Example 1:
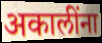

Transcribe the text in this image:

अकालींना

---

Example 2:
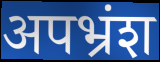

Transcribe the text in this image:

अपभ्रंश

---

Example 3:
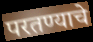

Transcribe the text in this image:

परतण्याचे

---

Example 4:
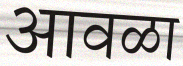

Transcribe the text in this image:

आवळा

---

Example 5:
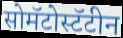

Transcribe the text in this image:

सोमॅटोस्टॅटीन